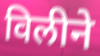
विलीने